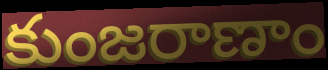
కుంజరాణాం